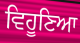
ਵਿਹੂਣਿਆ